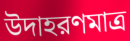
উদাহরণমাত্র